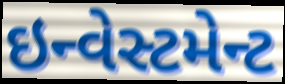
ઇન્વેસ્ટમેન્ટ